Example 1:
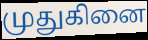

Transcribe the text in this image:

முதுகினை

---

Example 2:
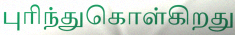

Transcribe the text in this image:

புரிந்துகொள்கிறது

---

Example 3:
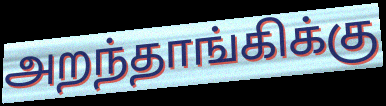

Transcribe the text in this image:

அறந்தாங்கிக்கு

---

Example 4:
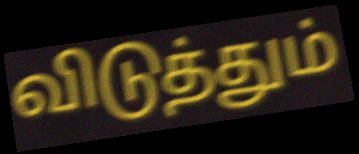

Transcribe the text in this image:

விடுத்தும்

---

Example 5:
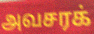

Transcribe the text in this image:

அவசரக்